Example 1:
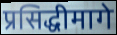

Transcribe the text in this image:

प्रसिद्धीमागे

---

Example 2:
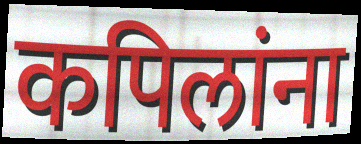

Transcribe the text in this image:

कपिलांना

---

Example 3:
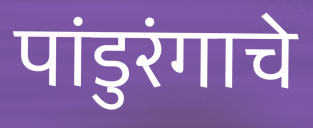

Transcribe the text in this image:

पांडुरंगाचे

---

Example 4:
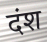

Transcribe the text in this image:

दंश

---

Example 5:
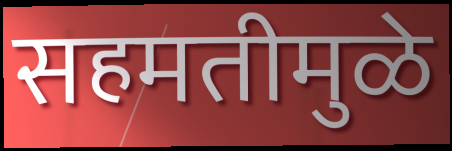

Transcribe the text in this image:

सहमतीमुळे